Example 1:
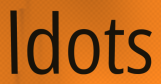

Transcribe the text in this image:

ldots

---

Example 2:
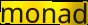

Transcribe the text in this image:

monad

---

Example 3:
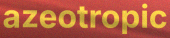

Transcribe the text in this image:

azeotropic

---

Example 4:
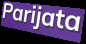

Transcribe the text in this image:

Parijata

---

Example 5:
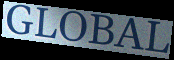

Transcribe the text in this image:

GLOBAL